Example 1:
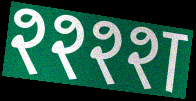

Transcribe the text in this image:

श्श्श्श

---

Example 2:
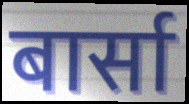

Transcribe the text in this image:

बार्सा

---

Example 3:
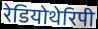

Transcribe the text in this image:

रेडियोथेरिपी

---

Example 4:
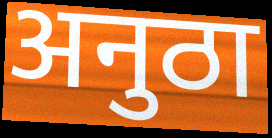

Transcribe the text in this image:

अनुठा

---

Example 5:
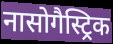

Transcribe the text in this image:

नासोगैस्ट्रिक